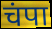
चंपा